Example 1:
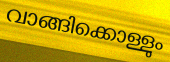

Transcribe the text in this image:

വാങ്ങിക്കൊള്ളും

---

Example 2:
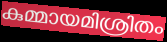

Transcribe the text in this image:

കുമ്മായമിശ്രിതം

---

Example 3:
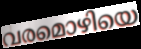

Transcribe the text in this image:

വരമൊഴിയെ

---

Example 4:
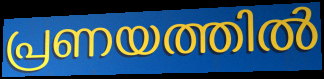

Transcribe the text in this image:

പ്രണയത്തിൽ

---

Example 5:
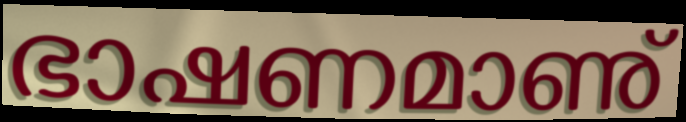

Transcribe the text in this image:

ഭാഷണമാണു്